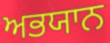
ਅਭਯਾਨ